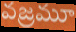
వజ్రమూ